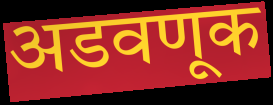
अडवणूक